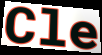
Cle